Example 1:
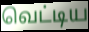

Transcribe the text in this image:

வெட்டிய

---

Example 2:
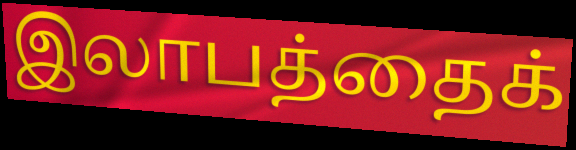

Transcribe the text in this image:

இலாபத்தைக்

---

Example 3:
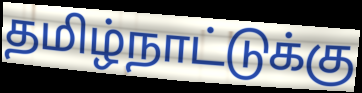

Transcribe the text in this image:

தமிழ்நாட்டுக்கு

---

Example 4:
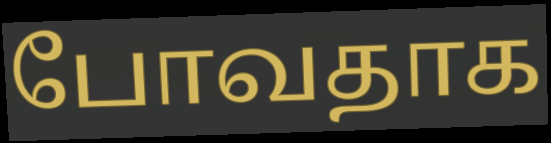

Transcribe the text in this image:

போவதாக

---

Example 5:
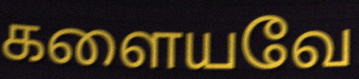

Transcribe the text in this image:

களையவே